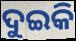
ଦୁଇକି